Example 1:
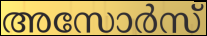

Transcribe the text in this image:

അസോർസ്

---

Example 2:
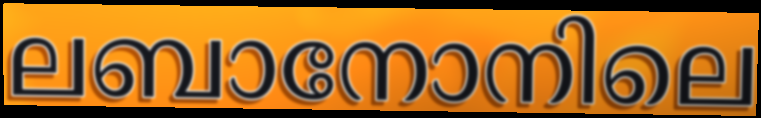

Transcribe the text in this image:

ലബാനോനിലെ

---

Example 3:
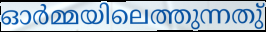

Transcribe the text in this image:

ഓർമ്മയിലെത്തുന്നതു്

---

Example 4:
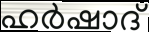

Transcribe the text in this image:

ഹർഷാദ്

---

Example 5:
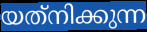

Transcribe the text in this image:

യത്‌നിക്കുന്ന